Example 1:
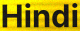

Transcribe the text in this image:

Hindi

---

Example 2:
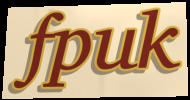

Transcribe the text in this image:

fpuk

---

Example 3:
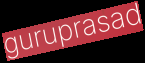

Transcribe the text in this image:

guruprasad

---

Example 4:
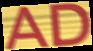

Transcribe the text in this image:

AD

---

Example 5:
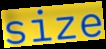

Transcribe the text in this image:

size